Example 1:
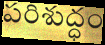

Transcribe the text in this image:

పరిశుద్ధం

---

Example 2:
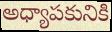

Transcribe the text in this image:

అధ్యాపకునికి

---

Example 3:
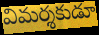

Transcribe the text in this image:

విమర్శకుడూ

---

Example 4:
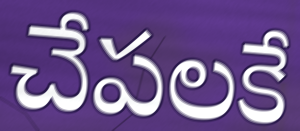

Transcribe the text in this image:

చేపలకే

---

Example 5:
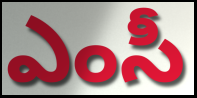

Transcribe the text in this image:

ఎంసీ